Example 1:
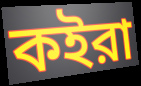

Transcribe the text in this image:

কইরা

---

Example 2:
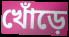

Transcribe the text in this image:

খোঁড়ে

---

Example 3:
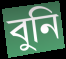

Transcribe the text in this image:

বুনি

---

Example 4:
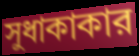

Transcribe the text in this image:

সুধাকাকার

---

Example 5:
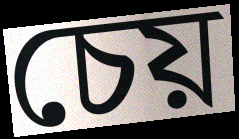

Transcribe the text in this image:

চেয়